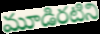
మూడిరటిని